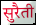
सुरैती